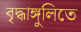
বৃদ্ধাঙ্গুলিতে